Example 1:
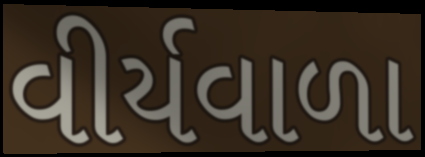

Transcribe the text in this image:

વીર્યવાળા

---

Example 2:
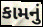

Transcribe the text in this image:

કામનું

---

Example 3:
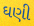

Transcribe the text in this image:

ઘણી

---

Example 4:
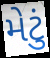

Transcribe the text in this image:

મેટું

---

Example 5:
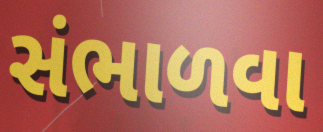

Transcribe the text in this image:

સંભાળવા